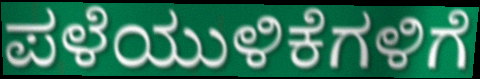
ಪಳೆಯುಳಿಕೆಗಳಿಗೆ